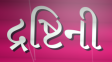
દ્રષ્ટિની